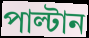
পাল্টান